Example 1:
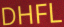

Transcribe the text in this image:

DHFL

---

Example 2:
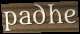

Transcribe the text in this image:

padhe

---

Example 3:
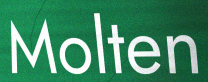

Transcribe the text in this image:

Molten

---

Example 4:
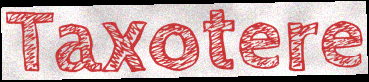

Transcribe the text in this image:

Taxotere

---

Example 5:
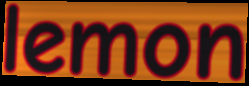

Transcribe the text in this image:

lemon